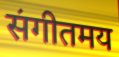
संगीतमय